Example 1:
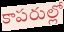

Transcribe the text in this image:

కాపరుల్లో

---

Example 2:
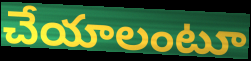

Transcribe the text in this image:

చేయాలంటూ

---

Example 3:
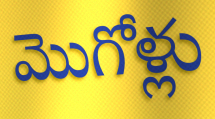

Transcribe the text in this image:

మొగోళ్లు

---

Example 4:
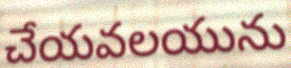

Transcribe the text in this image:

చేయవలయును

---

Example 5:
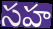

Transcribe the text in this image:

సహ